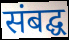
संबद्घ